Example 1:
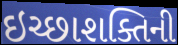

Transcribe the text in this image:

ઇચ્છાશક્તિની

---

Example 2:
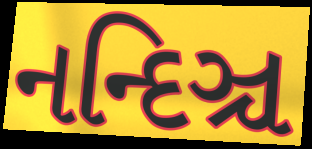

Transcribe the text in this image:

નન્દિઞ્ચ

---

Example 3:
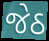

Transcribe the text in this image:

જેઠ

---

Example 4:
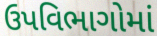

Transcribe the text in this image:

ઉપવિભાગોમાં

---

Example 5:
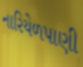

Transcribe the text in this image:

નારિયેળપાણી